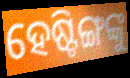
ହେଷ୍ଟିଙ୍ଗଙ୍କୁ